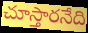
చూస్తారనేది